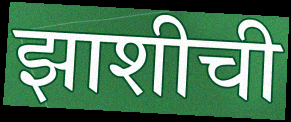
झाशीची